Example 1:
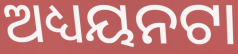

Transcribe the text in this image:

ଅଧ୍ୟୟନଟା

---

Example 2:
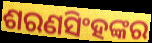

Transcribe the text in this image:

ଶରଣସିଂହଙ୍କର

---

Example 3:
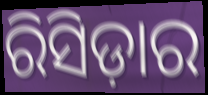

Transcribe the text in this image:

ରିସିଡ଼ାର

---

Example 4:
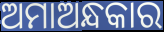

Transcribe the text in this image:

ଅମାଅନ୍ଧକାର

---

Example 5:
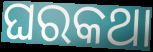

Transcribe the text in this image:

ଘରକଥା